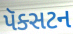
પૅક્સટન